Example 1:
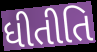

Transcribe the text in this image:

ધીતીતિ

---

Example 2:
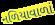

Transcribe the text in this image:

નળિયાવાળાં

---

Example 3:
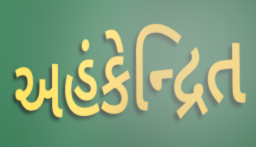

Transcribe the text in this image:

અહંકેન્દ્રિત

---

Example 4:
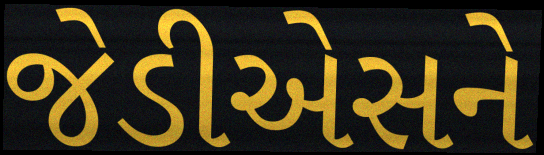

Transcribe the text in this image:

જેડીએસને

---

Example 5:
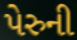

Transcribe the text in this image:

પેરુની